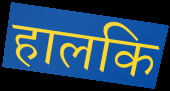
हालकि